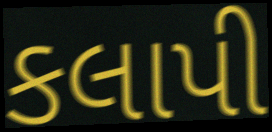
કલાપી